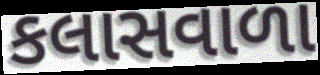
કલાસવાળા